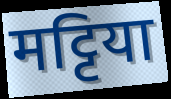
मट्टिया